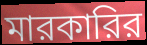
মারকারির